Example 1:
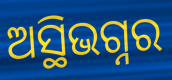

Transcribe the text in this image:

ଅସ୍ଥିଭଗ୍ନର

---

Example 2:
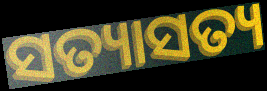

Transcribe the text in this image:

ସତ୍ୟାସତ୍ୟ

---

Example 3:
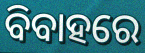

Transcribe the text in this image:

ବିବାହରେ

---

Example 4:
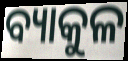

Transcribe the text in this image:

ବ୍ୟାକୁଳ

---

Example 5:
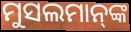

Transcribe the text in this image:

ମୁସଲମାନ୍‍ଙ୍କ